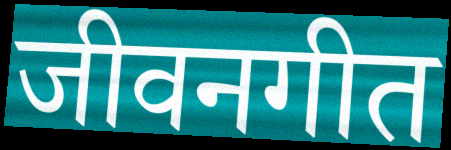
जीवनगीत